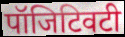
पॉजिटिवटी